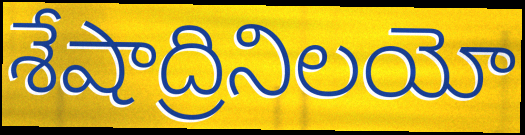
శేషాద్రినిలయో